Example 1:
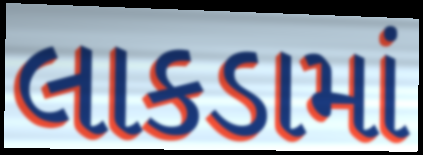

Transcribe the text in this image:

લાકડામાં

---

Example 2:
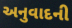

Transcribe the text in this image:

અનુવાદની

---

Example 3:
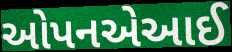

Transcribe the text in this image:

ઓપનએઆઈ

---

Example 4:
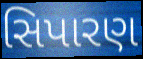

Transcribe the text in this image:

સિપારણ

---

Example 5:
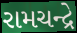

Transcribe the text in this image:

રામચન્દ્રે